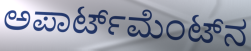
ಅಪಾರ್ಟ್‌ಮೆಂಟ್‌ನ